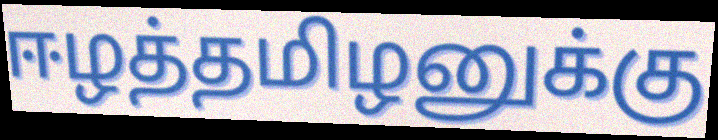
ஈழத்தமிழனுக்கு